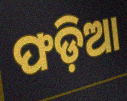
ଫଡ଼ିଆ